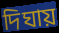
দিঘায়